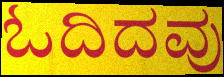
ಓದಿದವು